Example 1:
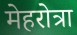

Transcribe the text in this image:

मेहरोत्रा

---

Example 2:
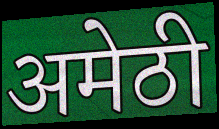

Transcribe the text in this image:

अमेठी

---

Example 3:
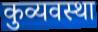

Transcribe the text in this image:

कुव्यवस्था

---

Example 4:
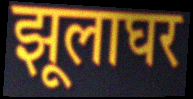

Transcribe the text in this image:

झूलाघर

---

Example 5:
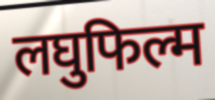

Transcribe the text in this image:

लघुफिल्म